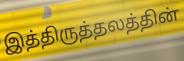
இத்திருத்தலத்தின்